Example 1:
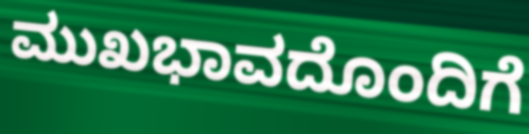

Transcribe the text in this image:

ಮುಖಭಾವದೊಂದಿಗೆ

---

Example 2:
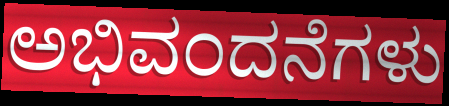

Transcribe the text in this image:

ಅಭಿವಂದನೆಗಳು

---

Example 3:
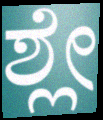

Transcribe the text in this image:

ಶ್ಲೇ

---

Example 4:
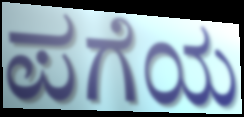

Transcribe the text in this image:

ಪಗೆಯ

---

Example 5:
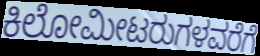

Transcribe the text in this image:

ಕಿಲೋಮೀಟರುಗಳವರೆಗೆ